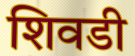
शिवडी